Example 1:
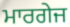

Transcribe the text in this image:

ਮਾਰਗੇਜ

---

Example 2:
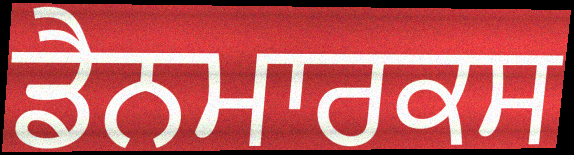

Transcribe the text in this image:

ਡੈਨਮਾਰਕਸ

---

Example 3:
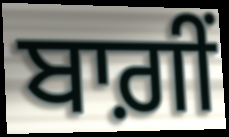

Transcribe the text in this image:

ਬਾਗ਼ੀਂ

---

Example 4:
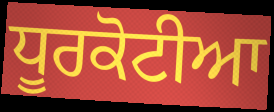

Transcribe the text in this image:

ਧੂਰਕੋਟੀਆ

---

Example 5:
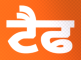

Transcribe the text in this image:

ਟੈਫ